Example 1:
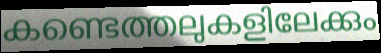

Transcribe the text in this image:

കണ്ടെത്തലുകളിലേക്കും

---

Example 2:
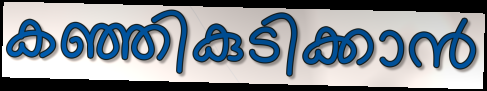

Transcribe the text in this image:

കഞ്ഞികുടിക്കാൻ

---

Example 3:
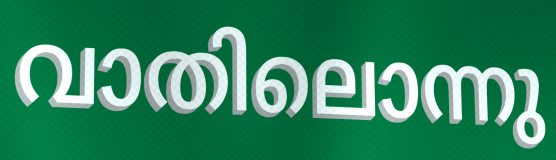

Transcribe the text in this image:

വാതിലൊന്നു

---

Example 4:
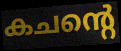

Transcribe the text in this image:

കചന്റെ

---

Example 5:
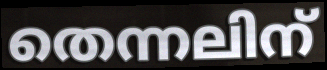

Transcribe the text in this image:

തെന്നലിന്